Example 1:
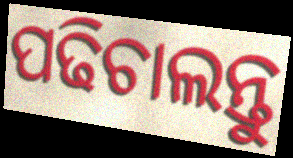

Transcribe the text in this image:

ପଢିଚାଲନ୍ତୁ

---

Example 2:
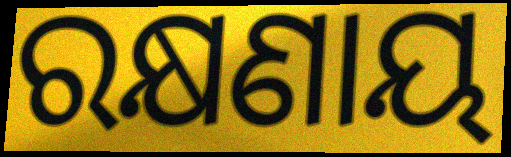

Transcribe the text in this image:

ରକ୍ଷଣାୟ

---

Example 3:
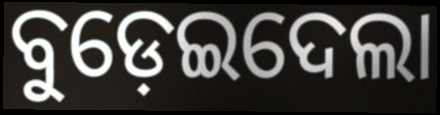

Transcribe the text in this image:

ବୁଡ଼େଇଦେଲା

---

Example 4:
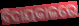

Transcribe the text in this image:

ବିଦାୟକାଳରେ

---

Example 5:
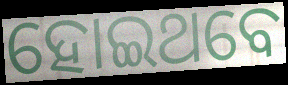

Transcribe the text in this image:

ହୋଇଥବେ